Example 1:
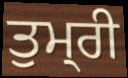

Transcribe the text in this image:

ਤੁਮ੍‍ਰੀ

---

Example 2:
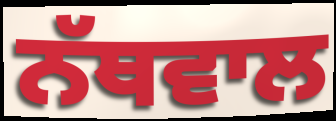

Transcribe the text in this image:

ਨੱਥਵਾਲ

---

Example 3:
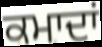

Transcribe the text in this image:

ਕਮਾਦਾਂ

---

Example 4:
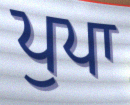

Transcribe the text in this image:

ਪੁਪਾ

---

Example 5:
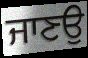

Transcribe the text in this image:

ਜਾਣਉ